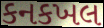
કનકખલ